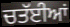
ਚਤੱਈਆਂ